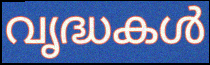
വൃദ്ധകൾ